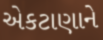
એકટાણાને